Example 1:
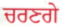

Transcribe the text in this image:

ਚਰਣਗੇ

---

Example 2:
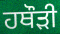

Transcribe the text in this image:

ਹਥੌੜੀ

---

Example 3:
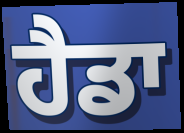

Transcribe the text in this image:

ਹੈਡਾ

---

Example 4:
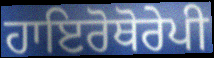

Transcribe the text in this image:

ਹਾਇਰੋਥੋਰੇਪੀ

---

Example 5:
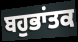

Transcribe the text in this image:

ਬਹੁਭਾਂਤਕ